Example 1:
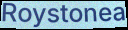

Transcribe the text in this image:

Roystonea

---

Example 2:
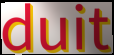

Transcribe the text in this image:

duit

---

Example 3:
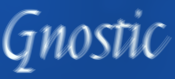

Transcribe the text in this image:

Gnostic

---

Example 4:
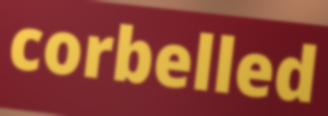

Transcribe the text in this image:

corbelled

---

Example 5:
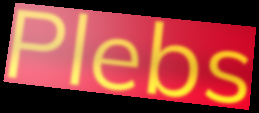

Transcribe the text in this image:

Plebs